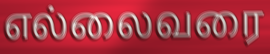
எல்லைவரை